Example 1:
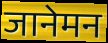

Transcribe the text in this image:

जानेमन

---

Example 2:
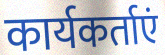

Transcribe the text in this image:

कार्यकर्ताएं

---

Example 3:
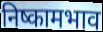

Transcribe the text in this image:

निष्कामभाव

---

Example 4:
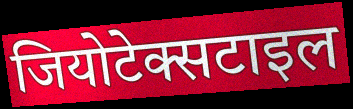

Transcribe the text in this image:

जियोटेक्सटाइल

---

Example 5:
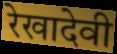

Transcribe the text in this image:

रेखादेवी